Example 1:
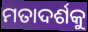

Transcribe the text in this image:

ମତାଦର୍ଶକୁ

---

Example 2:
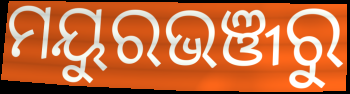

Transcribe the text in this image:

ମୟୁରଭଞ୍ଜରୁ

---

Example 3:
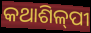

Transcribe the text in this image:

କଥାଶିଳ୍‌ପୀ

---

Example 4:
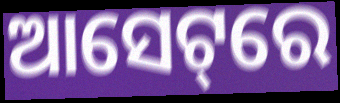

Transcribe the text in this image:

ଆସେଟ୍‌ରେ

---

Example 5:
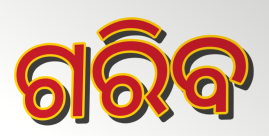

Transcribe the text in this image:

ଗରିବ